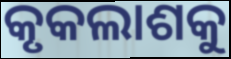
କୃକଲାଶକୁ